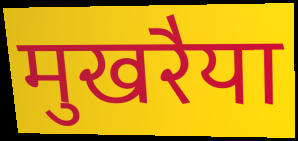
मुखरैया